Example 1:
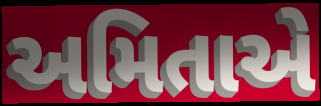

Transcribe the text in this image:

અમિતાએ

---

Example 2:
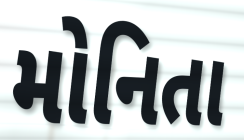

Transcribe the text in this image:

મોનિતા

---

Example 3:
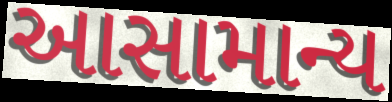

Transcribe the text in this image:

આસામાન્ય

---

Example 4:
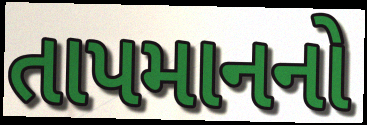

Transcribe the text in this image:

તાપમાનનો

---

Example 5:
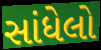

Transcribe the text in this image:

સાંધેલો